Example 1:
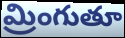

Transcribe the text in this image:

మ్రింగుతూ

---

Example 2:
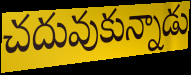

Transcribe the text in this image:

చదువుకున్నాడు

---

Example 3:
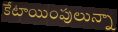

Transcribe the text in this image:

కేటాయింపులున్నా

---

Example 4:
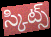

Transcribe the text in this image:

స్కిట్స్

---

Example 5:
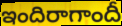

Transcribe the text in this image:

ఇందిరాగాందీ